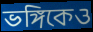
ভঙ্গিকেও